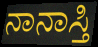
ನಾನಾಸ್ತಿ